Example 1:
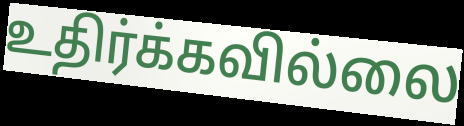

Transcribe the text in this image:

உதிர்க்கவில்லை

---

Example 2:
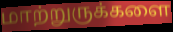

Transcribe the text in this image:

மாற்றுருக்களை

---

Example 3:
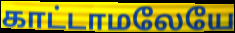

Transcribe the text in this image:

காட்டாமலேயே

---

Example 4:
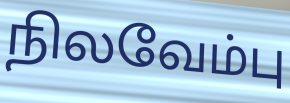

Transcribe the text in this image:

நிலவேம்பு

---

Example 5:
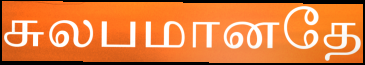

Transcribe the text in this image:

சுலபமானதே